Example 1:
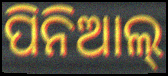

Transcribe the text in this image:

ପିନିଆଲ୍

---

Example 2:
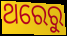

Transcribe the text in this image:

ଥରେରୁ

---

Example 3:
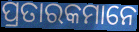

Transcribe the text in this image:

ପ୍ରତାରକମାନେ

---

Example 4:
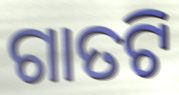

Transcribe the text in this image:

ଗାତଟି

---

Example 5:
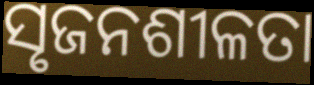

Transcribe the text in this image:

ସୃଜନଶୀଳତା